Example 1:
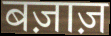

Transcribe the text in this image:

बज़ाज़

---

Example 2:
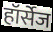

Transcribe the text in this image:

हॉर्सेज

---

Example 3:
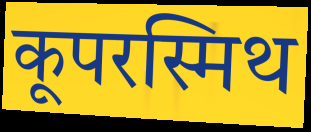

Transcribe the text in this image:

कूपरस्मिथ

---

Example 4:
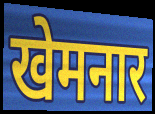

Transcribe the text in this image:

खेमनार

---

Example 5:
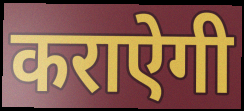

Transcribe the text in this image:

कराऐगी